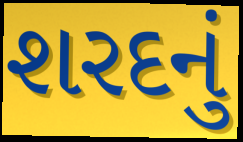
શરદનું